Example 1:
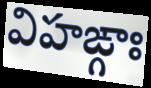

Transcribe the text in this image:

విహఙ్గాః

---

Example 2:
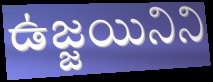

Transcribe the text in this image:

ఉజ్జయినిని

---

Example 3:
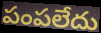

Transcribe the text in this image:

పంపలేదు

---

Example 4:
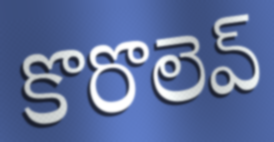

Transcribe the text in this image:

కొరొలెవ్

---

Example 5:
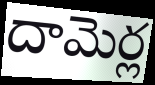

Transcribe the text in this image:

దామెర్ల